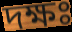
দক্ষঃ